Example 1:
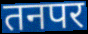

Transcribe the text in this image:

तनपर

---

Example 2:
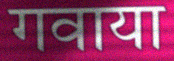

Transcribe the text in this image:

गवाया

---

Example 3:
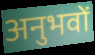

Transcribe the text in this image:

अनुभवों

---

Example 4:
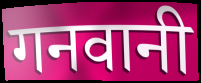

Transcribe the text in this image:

गनवानी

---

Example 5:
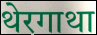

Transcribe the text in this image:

थेरगाथा